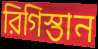
রিগিস্তান